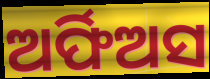
ଅର୍ଫିଅସ